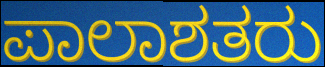
ಪಾಲಾಶತರು